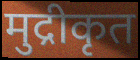
मुद्रीकृत